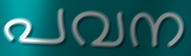
പവന